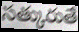
సత్కురుతే